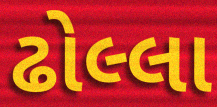
ઢોલ્લા